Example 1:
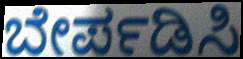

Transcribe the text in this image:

ಬೇರ್ಪಡಿಸಿ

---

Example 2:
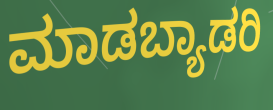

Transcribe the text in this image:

ಮಾಡಬ್ಯಾಡರಿ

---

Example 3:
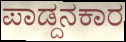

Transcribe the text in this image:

ಪಾಡ್ದನಕಾರ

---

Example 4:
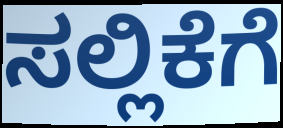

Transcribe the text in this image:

ಸಲ್ಲಿಕೆಗೆ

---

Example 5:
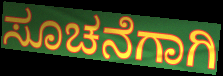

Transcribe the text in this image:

ಸೂಚನೆಗಾಗಿ